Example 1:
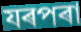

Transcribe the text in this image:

যৰপৰা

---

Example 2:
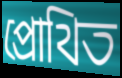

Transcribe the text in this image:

প্ৰোথিত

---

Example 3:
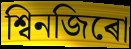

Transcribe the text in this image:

শ্বিনজিৰো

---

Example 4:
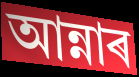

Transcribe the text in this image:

আন্নাৰ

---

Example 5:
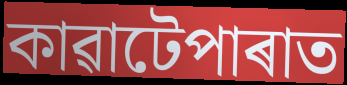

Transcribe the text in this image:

কাৱাটেপাৰাত